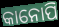
କାନୋପି